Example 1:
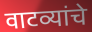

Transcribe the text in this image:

वाटव्यांचे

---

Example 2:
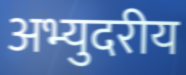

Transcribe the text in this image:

अभ्युदरीय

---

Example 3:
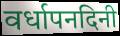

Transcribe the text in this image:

वर्धापनदिनी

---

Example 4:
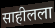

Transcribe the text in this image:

साहीलला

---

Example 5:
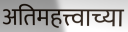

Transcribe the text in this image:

अतिमहत्त्वाच्या